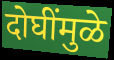
दोघींमुळे